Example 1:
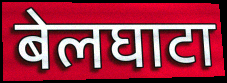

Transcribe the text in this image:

बेलघाटा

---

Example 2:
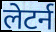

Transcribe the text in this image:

लेटर्न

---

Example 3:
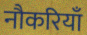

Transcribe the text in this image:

नौकरियाँ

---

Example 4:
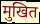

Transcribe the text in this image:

मुखित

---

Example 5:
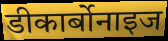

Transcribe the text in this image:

डीकार्बोनाइज